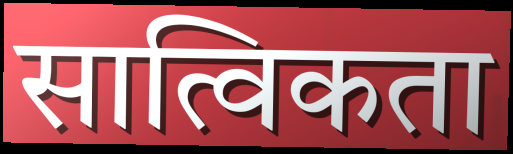
सात्विकता